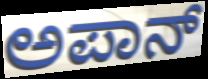
ಅಪಾನ್